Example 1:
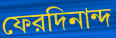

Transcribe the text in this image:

ফেরদিনান্দ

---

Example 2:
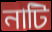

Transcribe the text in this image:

নাটি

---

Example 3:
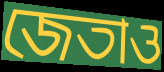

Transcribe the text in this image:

জেতাও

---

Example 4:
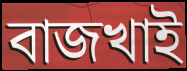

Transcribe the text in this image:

বাজখাই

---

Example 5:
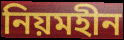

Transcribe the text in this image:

নিয়মহীন